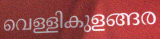
വെള്ളികുളങ്ങര